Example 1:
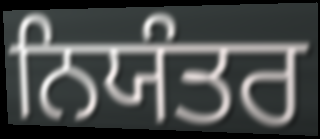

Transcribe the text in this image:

ਨਿਯੰਤਰ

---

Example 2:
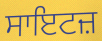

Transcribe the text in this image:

ਸਾਇਟਜ਼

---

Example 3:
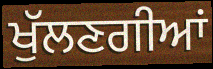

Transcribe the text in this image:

ਖੁੱਲਣਗੀਆਂ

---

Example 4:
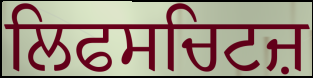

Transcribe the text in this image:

ਲਿਫਸਚਿਟਜ਼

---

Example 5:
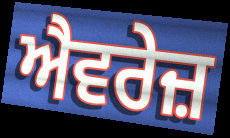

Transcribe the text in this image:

ਐਵਰੇਜ਼